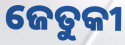
ଜେତୁକୀ